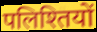
पलिश्‍तियों